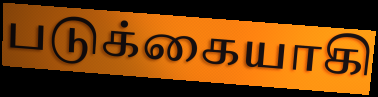
படுக்கையாகி